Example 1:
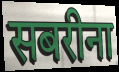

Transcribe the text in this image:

सबरीना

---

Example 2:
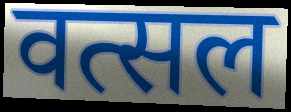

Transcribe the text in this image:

वत्सल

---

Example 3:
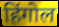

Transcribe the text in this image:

हिंगोल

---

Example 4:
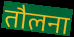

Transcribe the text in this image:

तौलना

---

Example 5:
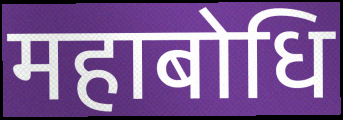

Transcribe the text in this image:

महाबोधि